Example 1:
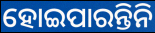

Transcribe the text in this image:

ହୋଇପାରନ୍ତିନି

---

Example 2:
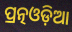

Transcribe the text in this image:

ପ୍ରତ୍ନଓଡ଼ିଆ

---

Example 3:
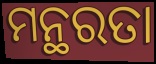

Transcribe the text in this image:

ମନ୍ଥରତା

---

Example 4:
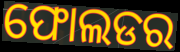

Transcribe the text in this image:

ଫୋଲଡର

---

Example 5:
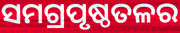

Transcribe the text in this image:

ସମଗ୍ରପୃଷ୍ଠତଳର